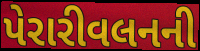
પેરારીવલનની